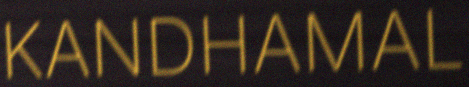
KANDHAMAL